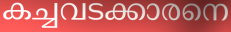
കച്ചവടക്കാരനെ